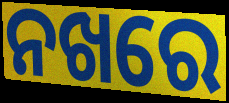
ନଖରେ